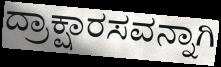
ದ್ರಾಕ್ಷಾರಸವನ್ನಾಗಿ